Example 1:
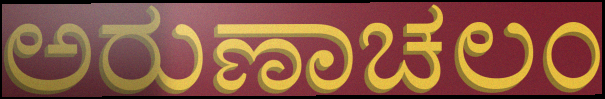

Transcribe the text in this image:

ಅರುಣಾಚಲಂ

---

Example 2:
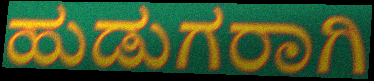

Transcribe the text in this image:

ಹುಡುಗರಾಗಿ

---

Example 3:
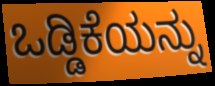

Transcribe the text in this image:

ಒಡ್ಡಿಕೆಯನ್ನು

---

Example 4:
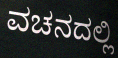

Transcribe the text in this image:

ವಚನದಲ್ಲಿ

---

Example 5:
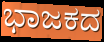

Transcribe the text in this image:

ಭಾಜಕದ